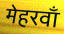
मेहरवाँ